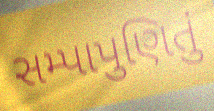
સમ્પાપુણિતું